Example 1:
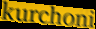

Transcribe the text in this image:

kurchoni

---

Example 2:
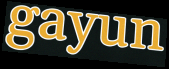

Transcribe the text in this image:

gayun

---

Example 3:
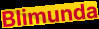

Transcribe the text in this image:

Blimunda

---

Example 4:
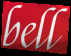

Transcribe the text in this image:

bell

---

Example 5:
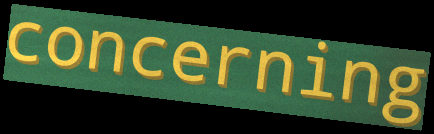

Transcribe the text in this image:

concerning